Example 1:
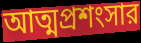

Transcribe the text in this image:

আত্মপ্রশংসার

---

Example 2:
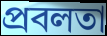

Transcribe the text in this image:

প্রবলতা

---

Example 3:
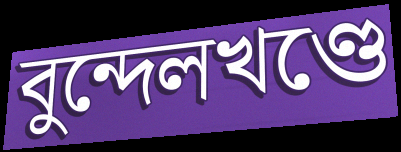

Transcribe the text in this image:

বুন্দেলখণ্ডে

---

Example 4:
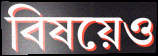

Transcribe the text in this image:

বিষয়েও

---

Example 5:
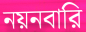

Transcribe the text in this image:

নয়নবারি